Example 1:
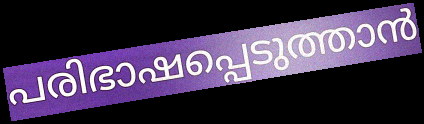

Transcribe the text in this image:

പരിഭാഷപ്പെടുത്താൻ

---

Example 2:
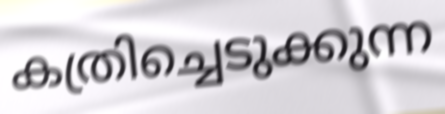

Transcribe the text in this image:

കത്രിച്ചെടുക്കുന്ന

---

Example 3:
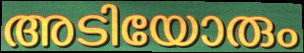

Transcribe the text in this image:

അടിയോരും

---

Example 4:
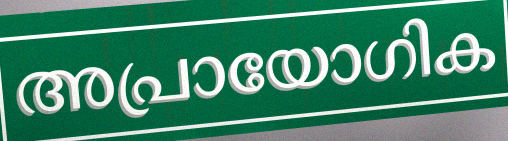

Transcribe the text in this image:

അപ്രായോഗിക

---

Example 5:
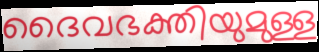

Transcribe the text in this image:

ദൈവഭക്തിയുമുള്ള